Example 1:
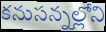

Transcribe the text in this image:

కనుసన్నల్లోని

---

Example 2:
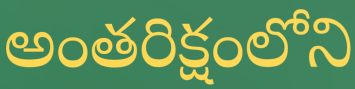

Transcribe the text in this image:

అంతరిక్షంలోని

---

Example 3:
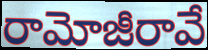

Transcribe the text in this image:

రామోజీరావే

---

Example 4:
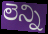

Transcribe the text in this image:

లెన్ని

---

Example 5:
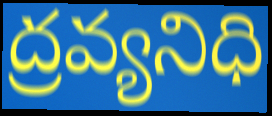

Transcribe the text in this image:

ద్రవ్యనిధి